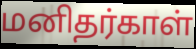
மனிதர்காள்